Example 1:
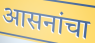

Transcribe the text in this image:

आसनांचा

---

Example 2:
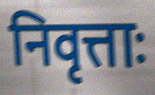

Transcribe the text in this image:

निवृत्ताः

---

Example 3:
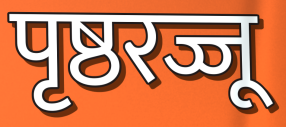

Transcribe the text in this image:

पृष्ठरज्जू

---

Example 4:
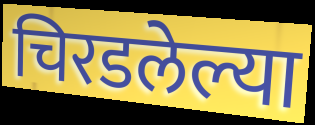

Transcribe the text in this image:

चिरडलेल्या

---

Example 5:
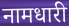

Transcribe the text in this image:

नामधारी